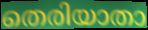
തെരിയാതാ